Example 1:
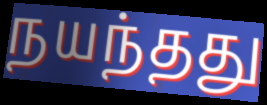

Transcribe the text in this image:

நயந்தது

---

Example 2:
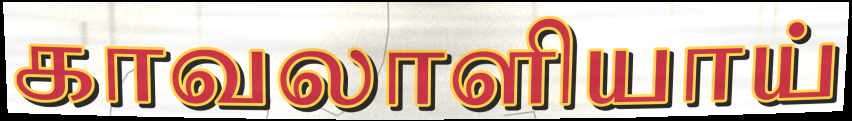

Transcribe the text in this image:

காவலாளியாய்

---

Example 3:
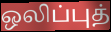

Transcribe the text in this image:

ஒலிப்புத்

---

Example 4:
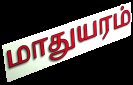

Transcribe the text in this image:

மாதுயரம்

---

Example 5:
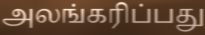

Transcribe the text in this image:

அலங்கரிப்பது